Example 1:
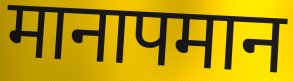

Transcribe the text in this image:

मानापमान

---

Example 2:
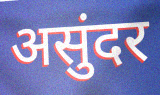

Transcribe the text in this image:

असुंदर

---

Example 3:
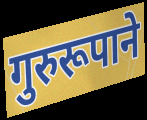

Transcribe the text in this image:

गुरुरूपाने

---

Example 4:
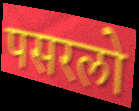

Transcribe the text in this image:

पसरलो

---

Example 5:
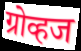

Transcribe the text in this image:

ग्रोव्हज